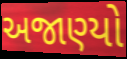
અજાણ્યો